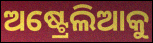
ଅଷ୍ଟ୍ରେଲିଆକୁ